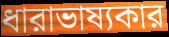
ধারাভাষ্যকার